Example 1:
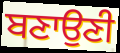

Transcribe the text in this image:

ਬਣਾਉਣੀ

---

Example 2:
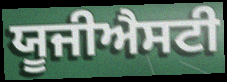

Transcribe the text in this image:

ਯੂਜੀਐਸਟੀ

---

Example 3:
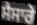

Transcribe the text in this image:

ਸੈਸਾਰੇ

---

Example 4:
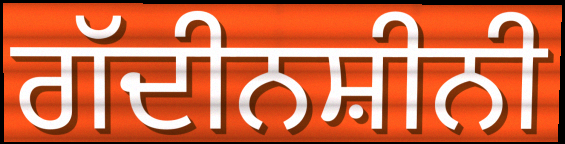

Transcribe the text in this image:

ਗੱਦੀਨਸ਼ੀਨੀ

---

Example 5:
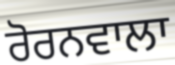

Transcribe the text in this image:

ਰੋਰਨਵਾਲਾ